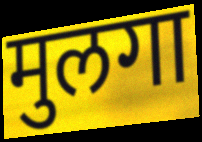
मुलगा